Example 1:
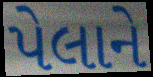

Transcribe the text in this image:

પેલાને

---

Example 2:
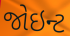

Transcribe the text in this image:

જોઇન્ટ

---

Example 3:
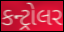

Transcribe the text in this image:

કન્ટ્રોલર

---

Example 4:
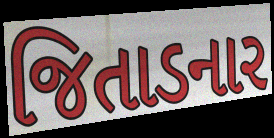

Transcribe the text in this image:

જિતાડનાર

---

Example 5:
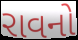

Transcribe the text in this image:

રાવનો